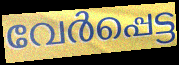
വേർപ്പെട്ട